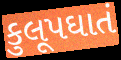
કુલૂપઘાતં